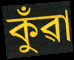
কুঁৱা